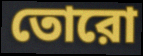
তোরো